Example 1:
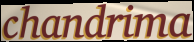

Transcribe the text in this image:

chandrima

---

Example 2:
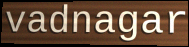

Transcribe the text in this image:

vadnagar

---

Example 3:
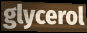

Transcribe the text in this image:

glycerol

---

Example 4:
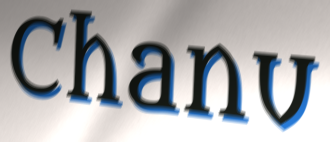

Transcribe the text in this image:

Chanu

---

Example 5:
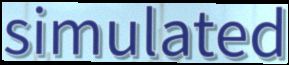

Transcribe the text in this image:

simulated